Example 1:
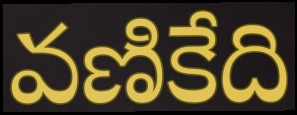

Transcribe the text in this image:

వణికేది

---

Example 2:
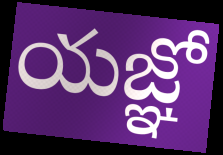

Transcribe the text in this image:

యజ్ఞో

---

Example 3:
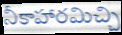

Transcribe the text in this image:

నీకాహారమిచ్చి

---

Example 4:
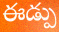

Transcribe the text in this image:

ఈడ్పు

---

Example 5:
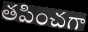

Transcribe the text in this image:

తపించగా